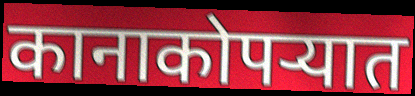
कानाकोपऱ्यात